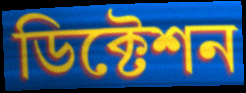
ডিক্টেশন